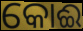
କୋଈ